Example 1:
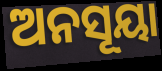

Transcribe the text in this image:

ଅନସୂୟା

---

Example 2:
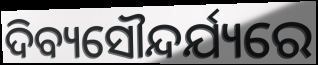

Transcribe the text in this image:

ଦିବ୍ୟସୌନ୍ଦର୍ଯ୍ୟରେ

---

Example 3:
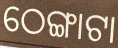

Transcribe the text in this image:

ଠେଙ୍ଗାଟା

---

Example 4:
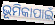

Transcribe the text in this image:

ଭୂମିକାପାଇଁ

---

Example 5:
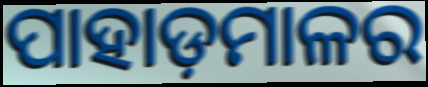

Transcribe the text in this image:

ପାହାଡ଼ମାଳର